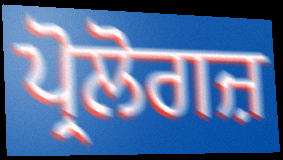
ਪ੍ਰੋਲੋਗਜ਼